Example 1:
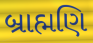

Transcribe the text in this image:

બ્રાહ્મણિ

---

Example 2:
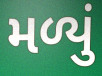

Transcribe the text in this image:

મળ્યું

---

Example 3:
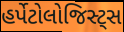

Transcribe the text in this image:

હર્પેટોલોજિસ્ટ્સ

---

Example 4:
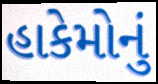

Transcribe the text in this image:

હાકેમોનું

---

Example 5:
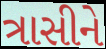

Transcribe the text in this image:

ત્રાસીને